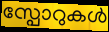
സ്പോറുകൾ